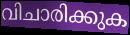
വിചാരിക്കുക